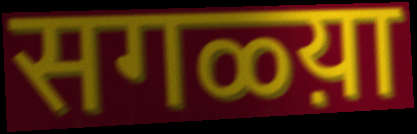
सगळ्य़ा